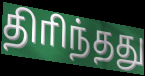
திரிந்தது